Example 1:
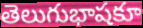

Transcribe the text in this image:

తెలుగుభాషకూ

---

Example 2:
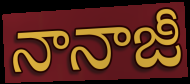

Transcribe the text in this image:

నానాజీ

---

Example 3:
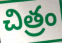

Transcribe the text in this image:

చిత్రం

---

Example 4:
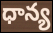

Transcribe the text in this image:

ధాన్య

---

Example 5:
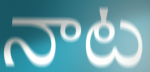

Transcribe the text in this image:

నాట